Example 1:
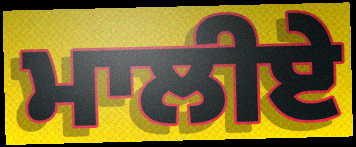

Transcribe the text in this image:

ਮਾਲੀਏ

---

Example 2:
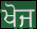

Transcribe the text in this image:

ਖੋਜ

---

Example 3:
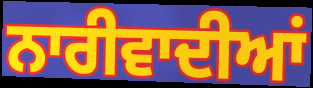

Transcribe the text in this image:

ਨਾਰੀਵਾਦੀਆਂ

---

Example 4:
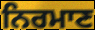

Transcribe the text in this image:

ਨਿਰਮਾਣ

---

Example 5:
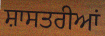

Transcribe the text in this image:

ਸ਼ਾਸਤਰੀਆਂ